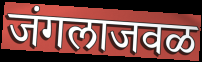
जंगलाजवळ